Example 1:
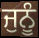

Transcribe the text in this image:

ਜੁਨੂੰ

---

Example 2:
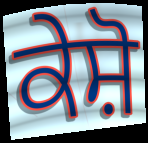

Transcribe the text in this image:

ਕੇਸ਼ੋ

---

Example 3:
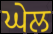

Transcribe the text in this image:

ਘੇਲ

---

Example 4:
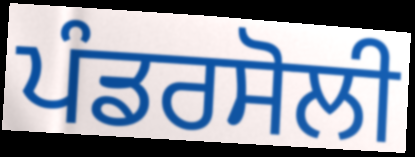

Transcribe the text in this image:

ਪੰਡਰਸੋਲੀ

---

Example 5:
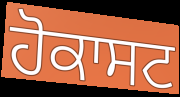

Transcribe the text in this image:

ਹੋਕਾਸਟ